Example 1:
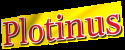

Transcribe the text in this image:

Plotinus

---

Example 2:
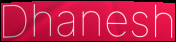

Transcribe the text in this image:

Dhanesh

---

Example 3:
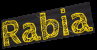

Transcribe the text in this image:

Rabia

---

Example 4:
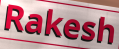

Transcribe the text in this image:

Rakesh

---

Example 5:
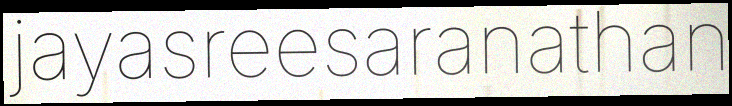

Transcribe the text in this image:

jayasreesaranathan